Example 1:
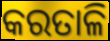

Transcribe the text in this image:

କରତାଳି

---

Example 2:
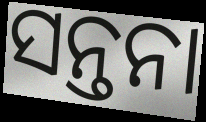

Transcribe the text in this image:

ସନ୍ତନା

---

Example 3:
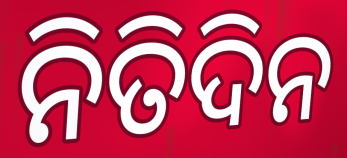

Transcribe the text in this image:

ନିତିଦିନ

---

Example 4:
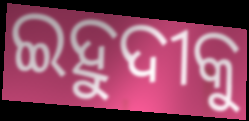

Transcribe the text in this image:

ଇହୁଦୀକୁ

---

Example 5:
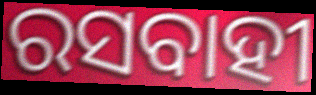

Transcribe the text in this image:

ରସବାହୀ